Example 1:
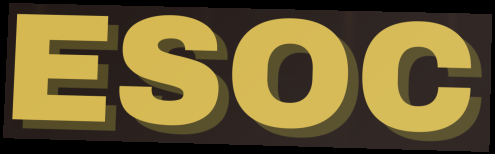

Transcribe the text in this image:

ESOC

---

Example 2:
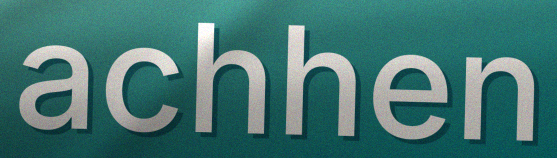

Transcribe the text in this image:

achhen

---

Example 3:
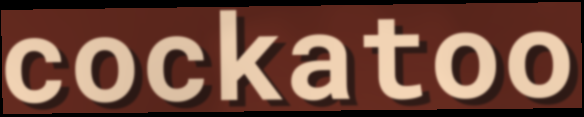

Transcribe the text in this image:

cockatoo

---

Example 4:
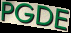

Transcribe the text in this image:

PGDE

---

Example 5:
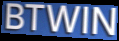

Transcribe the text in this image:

BTWIN